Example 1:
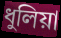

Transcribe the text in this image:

ধুলিয়া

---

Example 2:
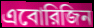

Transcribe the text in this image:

এবোরিজিন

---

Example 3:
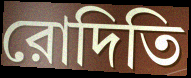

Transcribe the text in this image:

রোদিতি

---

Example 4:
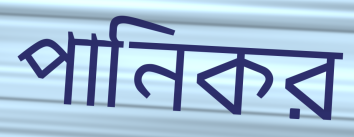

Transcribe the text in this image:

পানিকর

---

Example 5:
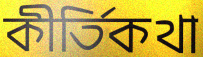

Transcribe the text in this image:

কীর্তিকথা